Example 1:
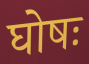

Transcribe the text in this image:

घोषः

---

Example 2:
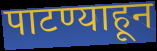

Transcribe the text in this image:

पाटण्याहून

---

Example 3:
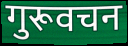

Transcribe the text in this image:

गुरूवचन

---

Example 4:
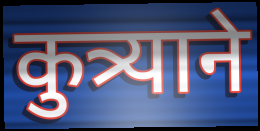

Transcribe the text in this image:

कुत्र्याने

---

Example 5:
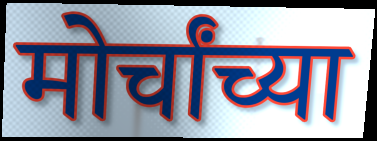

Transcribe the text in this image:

मोर्चांच्या